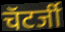
चॅटर्जी